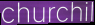
churchil